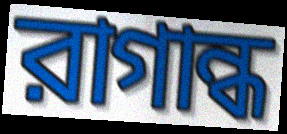
রাগান্ধ